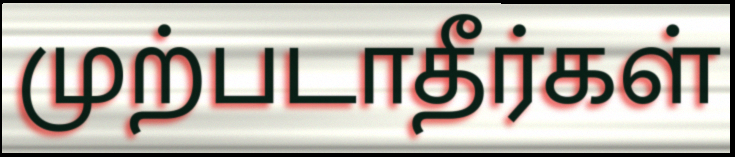
முற்படாதீர்கள்